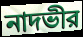
নাদভীর